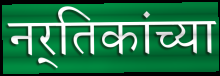
नर्तिकांच्या